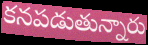
కనపడుతున్నారు